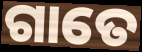
ଗାତେ